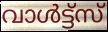
വാൾട്ട്സ്